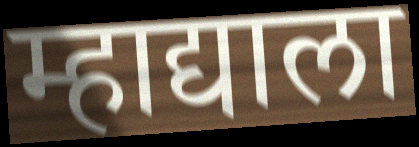
म्हाद्याला